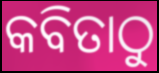
କବିତାଠୁ